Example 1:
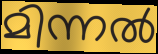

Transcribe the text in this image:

മിന്നൽ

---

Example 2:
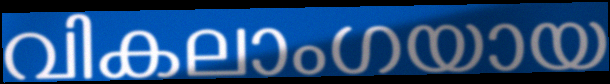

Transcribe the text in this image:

വികലാംഗയായ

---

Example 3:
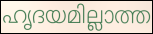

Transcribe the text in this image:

ഹൃദയമില്ലാത്ത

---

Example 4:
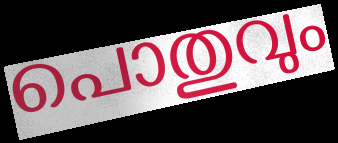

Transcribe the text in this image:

പൊതുവും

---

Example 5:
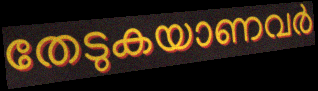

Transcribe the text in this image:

തേടുകയാണവർ